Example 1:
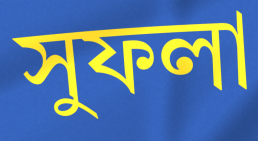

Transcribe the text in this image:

সুফলা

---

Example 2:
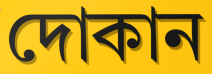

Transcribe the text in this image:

দোকান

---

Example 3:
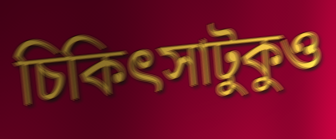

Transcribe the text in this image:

চিকিৎসাটুকুও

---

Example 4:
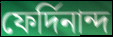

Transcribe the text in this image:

ফের্দিনান্দ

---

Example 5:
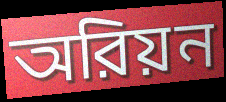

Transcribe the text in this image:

অরিয়ন